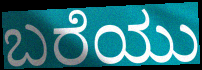
ಬರೆಯು